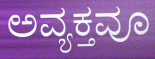
ಅವ್ಯಕ್ತವೂ